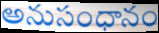
అనుసంధానం